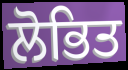
ਲੋਭਿਤ